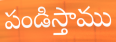
పండిస్తాము